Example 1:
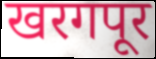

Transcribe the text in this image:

खरगपूर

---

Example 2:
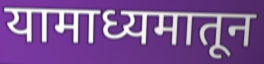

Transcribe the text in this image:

यामाध्यमातून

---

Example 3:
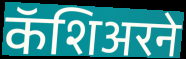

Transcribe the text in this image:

कॅशिअरने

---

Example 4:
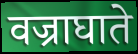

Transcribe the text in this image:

वज्राघाते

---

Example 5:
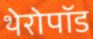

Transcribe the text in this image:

थेरोपॉड